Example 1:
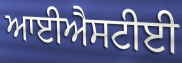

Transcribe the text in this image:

ਆਈਐਸਟੀਈ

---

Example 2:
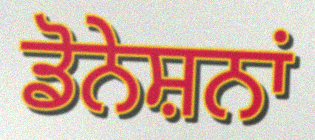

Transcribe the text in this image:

ਡੋਨੇਸ਼ਨਾਂ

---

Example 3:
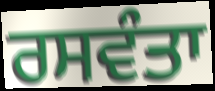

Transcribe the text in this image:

ਰਸਵੰਤਾ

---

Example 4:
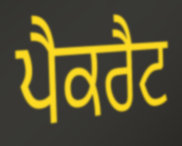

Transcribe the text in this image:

ਪੈਕਰੈਟ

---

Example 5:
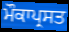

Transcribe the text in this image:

ਮੌਕਾਪ੍ਰਸਤ